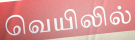
வெயிலில்